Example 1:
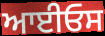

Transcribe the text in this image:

ਆਈਓਸ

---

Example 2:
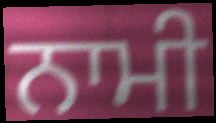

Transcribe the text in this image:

ਨਾਮੀ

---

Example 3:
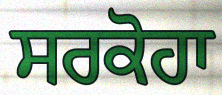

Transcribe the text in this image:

ਸਰਕੋਹਾ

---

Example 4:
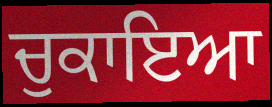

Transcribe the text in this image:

ਚੁਕਾਇਆ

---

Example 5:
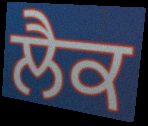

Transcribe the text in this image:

ਲੈਕ